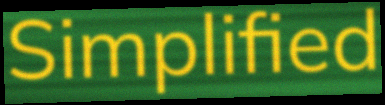
Simplified